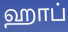
ஹாப்